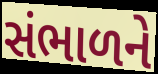
સંભાળને